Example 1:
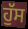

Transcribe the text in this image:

ਹੁੱਸ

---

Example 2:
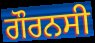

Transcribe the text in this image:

ਗੌਰਨਸੀ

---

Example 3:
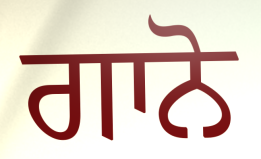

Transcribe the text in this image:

ਗਾਨੋ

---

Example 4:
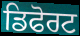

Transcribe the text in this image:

ਡਿਫੋਰਟ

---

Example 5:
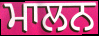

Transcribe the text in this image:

ਮਾਲਨ